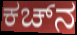
ಕಚ್‌ನ